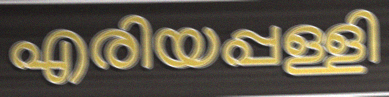
എരിയപ്പള്ളി